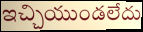
ఇచ్చియుండలేదు